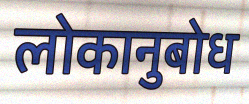
लोकानुबोध